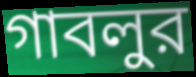
গাবলুর